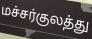
மச்சர்குலத்து